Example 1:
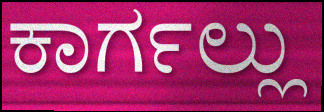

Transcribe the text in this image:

ಕಾರ್ಗಲ್ಲು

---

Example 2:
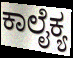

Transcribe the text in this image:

ಕಾಲೈಕ್ಯ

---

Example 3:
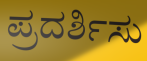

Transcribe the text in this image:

ಪ್ರದರ್ಶಿಸು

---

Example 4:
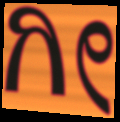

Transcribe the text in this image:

ಗೀ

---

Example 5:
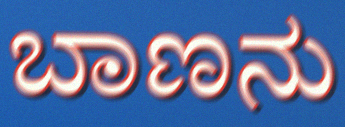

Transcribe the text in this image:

ಬಾಣನು